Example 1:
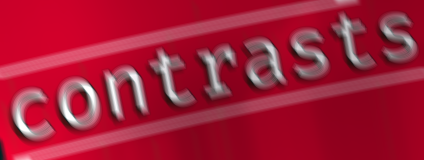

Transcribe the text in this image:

contrasts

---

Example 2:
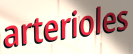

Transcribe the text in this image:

arterioles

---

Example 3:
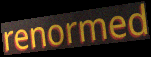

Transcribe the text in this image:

renormed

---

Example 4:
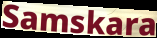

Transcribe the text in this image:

Samskara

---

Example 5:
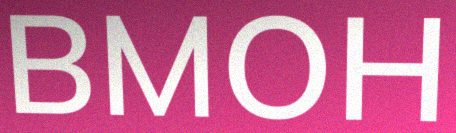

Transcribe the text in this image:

BMOH